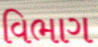
વિભાગ